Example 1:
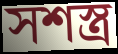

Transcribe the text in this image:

সশস্ত্র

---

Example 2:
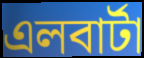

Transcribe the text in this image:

এলবার্টা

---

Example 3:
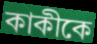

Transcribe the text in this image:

কাকীকে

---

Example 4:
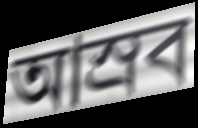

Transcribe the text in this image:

আস্রব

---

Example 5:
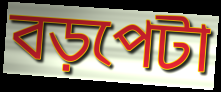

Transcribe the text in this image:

বড়পেটা